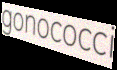
gonococci